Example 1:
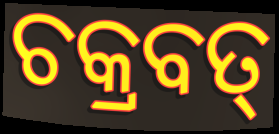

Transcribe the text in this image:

ଚକ୍ରବତ୍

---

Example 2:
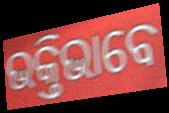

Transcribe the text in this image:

ଭକ୍ତିଭାବେ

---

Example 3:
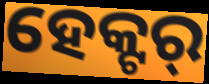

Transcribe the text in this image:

ହେକ୍ଟର୍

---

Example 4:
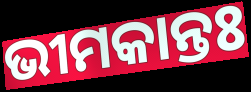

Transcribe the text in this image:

ଭୀମକାନ୍ତଃ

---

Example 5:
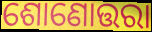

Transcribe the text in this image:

ଶୋଣୋତ୍ତରା